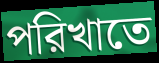
পরিখাতে